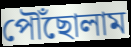
পৌঁছোলাম